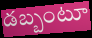
డబ్బంటూ